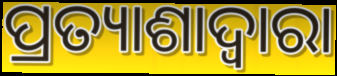
ପ୍ରତ୍ୟାଶାଦ୍ୱାରା